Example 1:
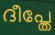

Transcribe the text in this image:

ദീപ്തേ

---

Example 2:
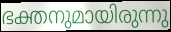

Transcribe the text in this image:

ഭക്തനുമായിരുന്നു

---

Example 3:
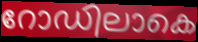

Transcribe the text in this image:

റോഡിലാകെ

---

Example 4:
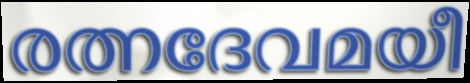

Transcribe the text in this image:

രത്നദേവമയീ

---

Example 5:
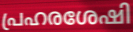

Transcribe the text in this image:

പ്രഹരശേഷി